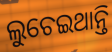
ଲୁଚେଇଥାନ୍ତି